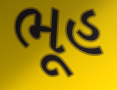
ભૂહ